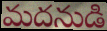
మదనుడి